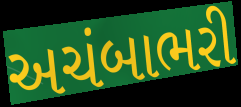
અચંબાભરી